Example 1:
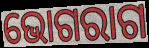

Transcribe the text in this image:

ଭୋଗରାଗ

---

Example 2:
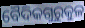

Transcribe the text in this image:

ବୈଦିକଗୁରୁକୁଳ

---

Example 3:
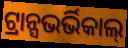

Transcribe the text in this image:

ଟ୍ରାନ୍ସଭର୍ଭିକାଲ୍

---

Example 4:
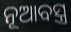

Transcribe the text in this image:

ନୂଆବସ୍ତ୍ର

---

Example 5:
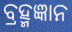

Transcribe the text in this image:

ବ୍ରହ୍ମଜ୍ଞାନ